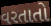
વરતાતો